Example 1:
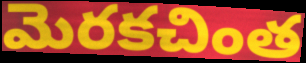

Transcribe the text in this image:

మెరకచింత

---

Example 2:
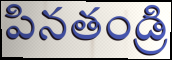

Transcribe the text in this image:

పినతండ్రి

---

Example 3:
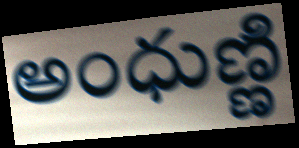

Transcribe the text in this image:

అంధుణ్ణి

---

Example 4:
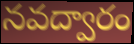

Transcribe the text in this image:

నవద్వారం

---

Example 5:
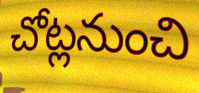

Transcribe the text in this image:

చోట్లనుంచి